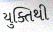
યુક્તિથી